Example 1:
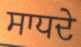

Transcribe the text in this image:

ਸਾਧਦੇ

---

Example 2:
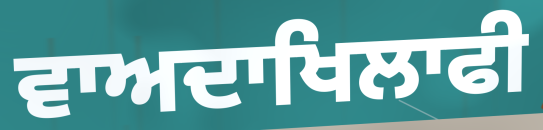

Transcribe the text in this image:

ਵਾਅਦਾਖਿਲਾਫੀ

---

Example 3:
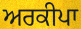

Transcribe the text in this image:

ਅਰਕੀਪਾ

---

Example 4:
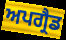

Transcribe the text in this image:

ਅਪਗ੍ਰੈਡ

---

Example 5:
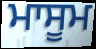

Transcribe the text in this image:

ਮਾਸੂਮ